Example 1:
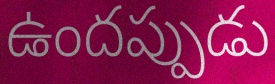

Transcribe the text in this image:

ఉందప్పుడు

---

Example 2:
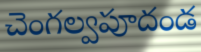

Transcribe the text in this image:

చెంగల్వపూదండ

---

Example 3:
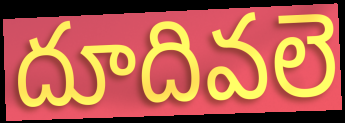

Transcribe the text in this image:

దూదివలె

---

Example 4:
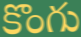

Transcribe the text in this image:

కొంగు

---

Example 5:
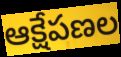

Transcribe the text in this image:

ఆక్షేపణల